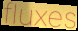
fluxes